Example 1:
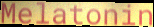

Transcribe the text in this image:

Melatonin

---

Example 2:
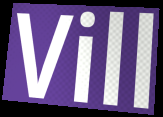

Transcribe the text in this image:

Vill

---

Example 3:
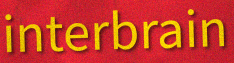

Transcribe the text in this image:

interbrain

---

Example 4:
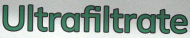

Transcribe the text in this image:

Ultrafiltrate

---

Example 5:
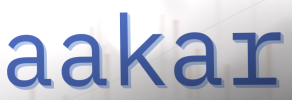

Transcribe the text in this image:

aakar